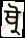
ਥ੍ਰੋ